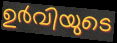
ഉർവിയുടെ